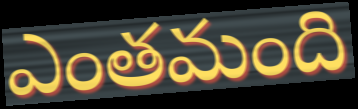
ఎంతమంది